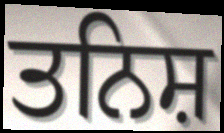
ਤਨਿਸ਼